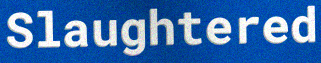
Slaughtered